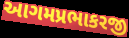
આગમપ્રભાકરજી